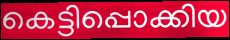
കെട്ടിപ്പൊക്കിയ